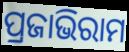
ପ୍ରଜାଭିରାମ